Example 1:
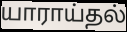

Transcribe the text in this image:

யாராய்தல்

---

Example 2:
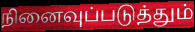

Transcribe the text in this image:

நினைவுப்படுத்தும்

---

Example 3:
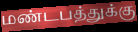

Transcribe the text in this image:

மண்டபத்துக்கு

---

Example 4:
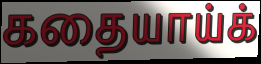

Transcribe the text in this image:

கதையாய்க்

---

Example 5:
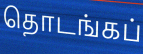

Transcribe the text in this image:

தொடங்கப்